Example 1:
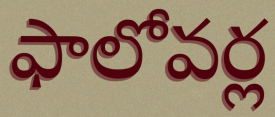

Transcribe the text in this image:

ఫాలోవర్ల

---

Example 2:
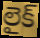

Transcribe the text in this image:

లైక్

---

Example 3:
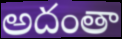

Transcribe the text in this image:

అదంతా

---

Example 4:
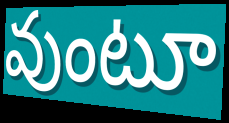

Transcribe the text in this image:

వుంటూ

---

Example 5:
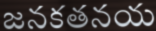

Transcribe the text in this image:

జనకతనయ